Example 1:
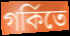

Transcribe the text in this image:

গর্কিতে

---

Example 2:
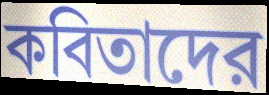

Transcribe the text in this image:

কবিতাদের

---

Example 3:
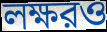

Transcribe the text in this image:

লক্ষরও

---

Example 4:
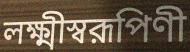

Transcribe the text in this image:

লক্ষ্মীস্বরূপিণী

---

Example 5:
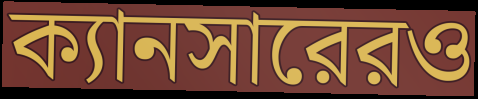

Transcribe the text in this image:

ক্যানসারেরও